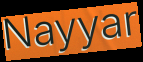
Nayyar